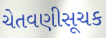
ચેતવણીસૂચક